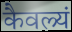
कैवल्यं